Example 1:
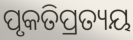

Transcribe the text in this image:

ପୃକତିପ୍ରତ୍ୟୟ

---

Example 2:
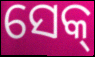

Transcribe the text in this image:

ସେକ୍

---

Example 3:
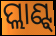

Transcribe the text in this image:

ପ୍ଲାଣ୍ଟ୍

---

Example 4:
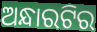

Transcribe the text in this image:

ଅନ୍ଧାରଟିର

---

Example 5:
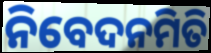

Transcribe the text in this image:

ନିବେଦନମିତି